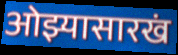
ओझ्यासारखं